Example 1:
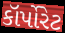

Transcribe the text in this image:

કૉર્પોરેટ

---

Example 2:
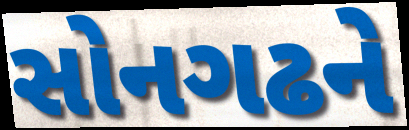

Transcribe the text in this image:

સોનગઢને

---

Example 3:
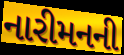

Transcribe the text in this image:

નારીમનની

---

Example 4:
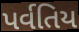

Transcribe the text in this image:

પર્વતિય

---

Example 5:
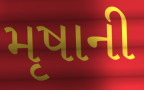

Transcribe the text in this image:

મૃષાની